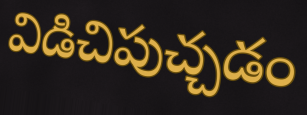
విడిచిపుచ్చడం